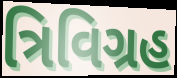
ત્રિવિગ્રહ